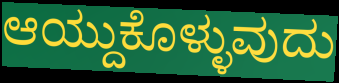
ಆಯ್ದುಕೊಳ್ಳುವುದು